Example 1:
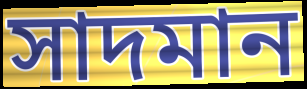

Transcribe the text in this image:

সাদমান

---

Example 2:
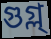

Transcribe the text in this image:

গুগ্ল্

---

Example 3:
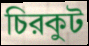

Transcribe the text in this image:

চিরকুট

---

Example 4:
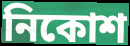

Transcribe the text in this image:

নিকোশ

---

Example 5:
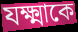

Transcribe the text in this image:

যক্ষ্মাকে